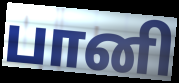
பானி